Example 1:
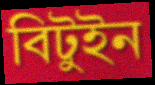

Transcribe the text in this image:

বিটুইন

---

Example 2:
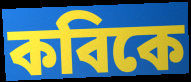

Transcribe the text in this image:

কবিকে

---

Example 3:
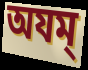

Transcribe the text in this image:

অযম্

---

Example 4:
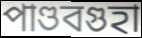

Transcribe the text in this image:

পাণ্ডবগুহা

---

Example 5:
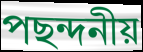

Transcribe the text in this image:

পছন্দনীয়